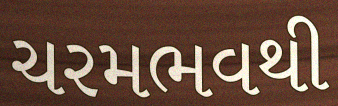
ચરમભવથી